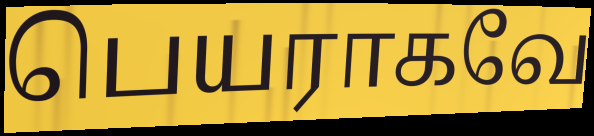
பெயராகவே